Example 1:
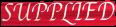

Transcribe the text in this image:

SUPPLIED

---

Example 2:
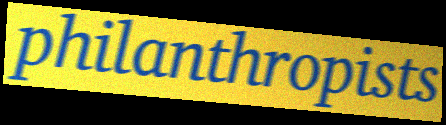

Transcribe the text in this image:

philanthropists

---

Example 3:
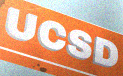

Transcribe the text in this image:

UCSD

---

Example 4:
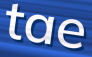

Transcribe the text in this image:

tae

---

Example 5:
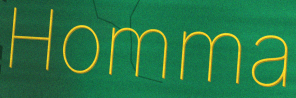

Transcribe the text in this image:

Homma